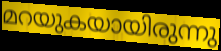
മറയുകയായിരുന്നു